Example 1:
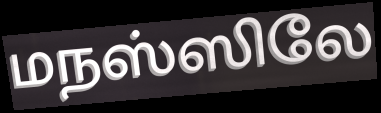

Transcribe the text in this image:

மநஸ்ஸிலே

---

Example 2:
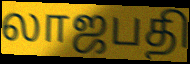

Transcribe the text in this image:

லாஜபதி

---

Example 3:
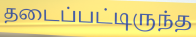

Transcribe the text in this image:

தடைப்பட்டிருந்த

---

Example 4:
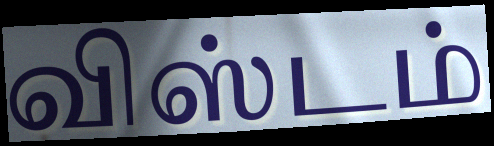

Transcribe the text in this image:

விஸ்டம்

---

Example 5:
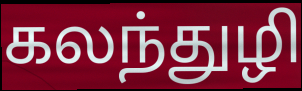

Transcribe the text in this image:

கலந்துழி